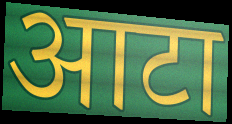
आटा